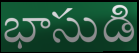
భాసుడి